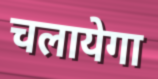
चलायेगा